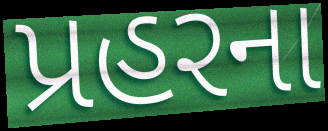
પ્રહરના